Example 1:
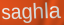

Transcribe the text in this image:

saghla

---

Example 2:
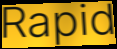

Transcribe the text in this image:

Rapid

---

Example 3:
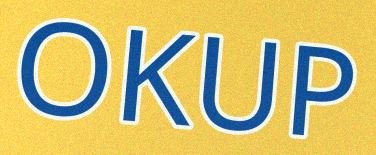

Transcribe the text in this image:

OKUP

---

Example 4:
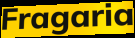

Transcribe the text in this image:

Fragaria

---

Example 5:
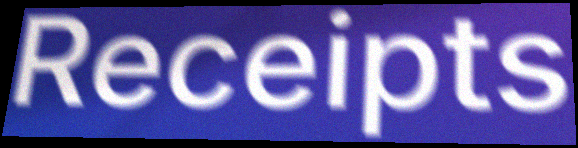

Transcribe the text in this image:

Receipts